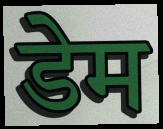
डेम